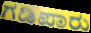
ಗಡಿಪಾರು